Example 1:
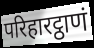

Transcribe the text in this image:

परिहारट्ठाणं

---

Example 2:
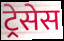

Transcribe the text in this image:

ट्रेसेस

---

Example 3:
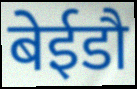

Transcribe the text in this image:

बेईडौ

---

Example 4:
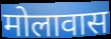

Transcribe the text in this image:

मोलावास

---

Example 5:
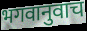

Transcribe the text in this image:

भगवानुवाच